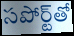
సపోర్ట్‌తో